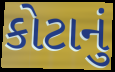
કોટાનું